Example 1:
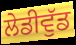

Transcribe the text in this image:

ਲੇਡੀਵੁੱਡ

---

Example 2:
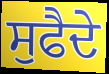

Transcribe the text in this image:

ਸੁਫੈਦੇ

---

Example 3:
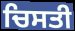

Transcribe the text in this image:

ਚਿਸਤੀ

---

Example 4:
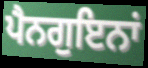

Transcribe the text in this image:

ਪੈਨਗੁਇਨਾਂ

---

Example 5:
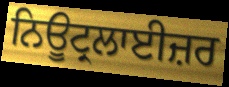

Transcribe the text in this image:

ਨਿਊਟ੍ਰਲਾਈਜ਼ਰ